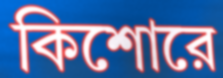
কিশোরে